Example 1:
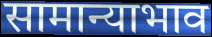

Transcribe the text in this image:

सामान्याभाव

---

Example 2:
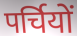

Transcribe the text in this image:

पर्चियों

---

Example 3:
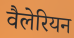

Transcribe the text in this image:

वैलेरियन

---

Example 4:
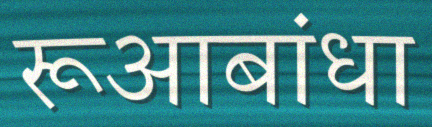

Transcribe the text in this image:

रूआबांधा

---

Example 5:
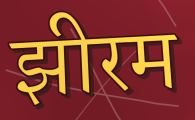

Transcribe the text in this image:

झीरम